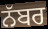
ਨੱਬਰ